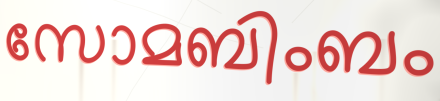
സോമബിംബം